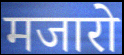
मजारो